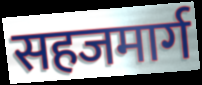
सहजमार्ग